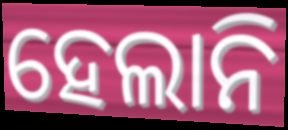
ହେଲାନି